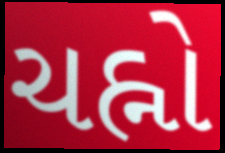
ચહ્નો